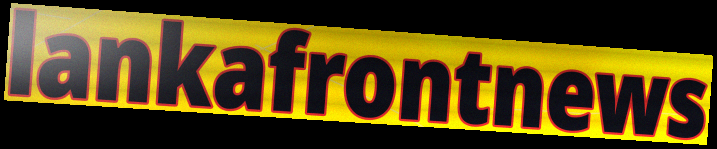
lankafrontnews